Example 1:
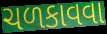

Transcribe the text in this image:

ચળકાવવા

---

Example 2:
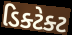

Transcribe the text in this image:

ડિક્ટેક્ટ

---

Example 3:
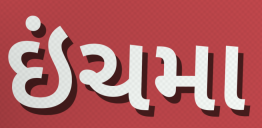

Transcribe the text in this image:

ઇંચમા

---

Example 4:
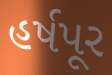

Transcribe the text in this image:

હર્ષપૂર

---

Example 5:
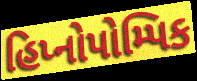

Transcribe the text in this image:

હિપ્નોપોમ્પિક